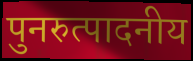
पुनरुत्पादनीय